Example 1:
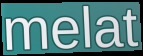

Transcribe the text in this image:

melat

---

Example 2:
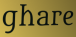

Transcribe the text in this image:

ghare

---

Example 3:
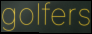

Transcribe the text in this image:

golfers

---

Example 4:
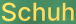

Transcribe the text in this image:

Schuh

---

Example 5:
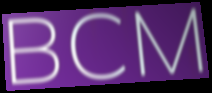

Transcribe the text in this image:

BCM